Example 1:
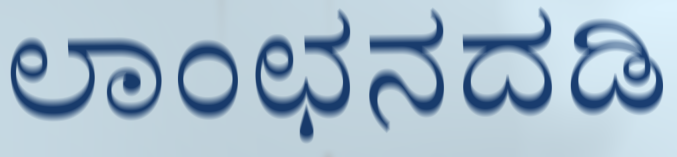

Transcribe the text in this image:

ಲಾಂಛನದಡಿ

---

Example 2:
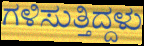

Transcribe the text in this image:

ಗಳಿಸುತ್ತಿದ್ದಳು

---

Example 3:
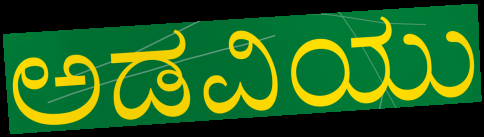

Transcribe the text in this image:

ಅಡವಿಯು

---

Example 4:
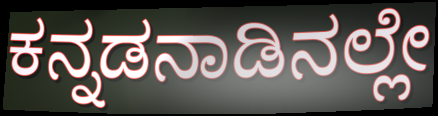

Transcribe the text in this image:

ಕನ್ನಡನಾಡಿನಲ್ಲೇ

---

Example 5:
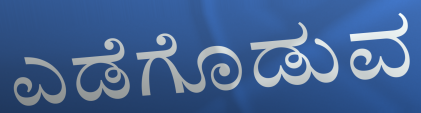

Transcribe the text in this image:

ಎಡೆಗೊಡುವ